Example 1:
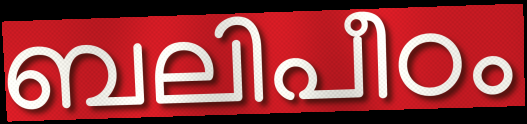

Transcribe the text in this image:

ബലിപീഠം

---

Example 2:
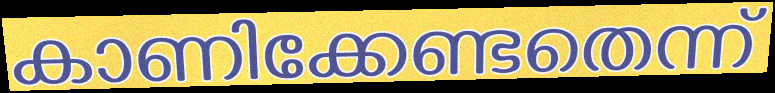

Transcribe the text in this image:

കാണിക്കേണ്ടതെന്ന്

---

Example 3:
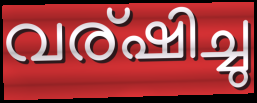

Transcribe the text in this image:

വര്ഷിച്ചു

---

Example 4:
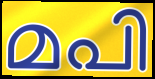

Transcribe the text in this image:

മപി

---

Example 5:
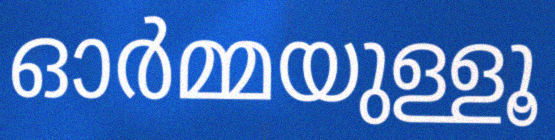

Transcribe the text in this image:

ഓർമ്മയുള്ളൂ